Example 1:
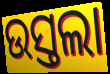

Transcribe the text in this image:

ଉସ୍ତଲା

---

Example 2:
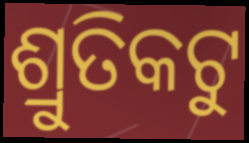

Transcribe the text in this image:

ଶ୍ରୁତିକଟୁ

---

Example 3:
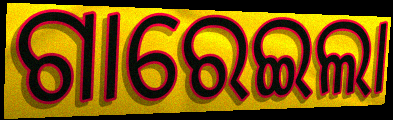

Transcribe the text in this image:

ଗାରେଇଲା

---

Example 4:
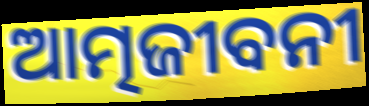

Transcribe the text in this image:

ଆତ୍ମଜୀବନୀ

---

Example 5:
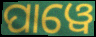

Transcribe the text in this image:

ପାୱେ